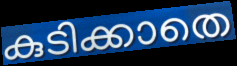
കുടിക്കാതെ